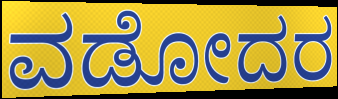
ವಡೋದರ